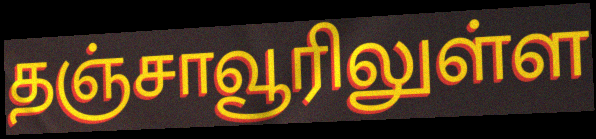
தஞ்சாவூரிலுள்ள